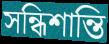
সন্ধিশান্তি